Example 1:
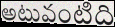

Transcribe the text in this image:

అటువంటిది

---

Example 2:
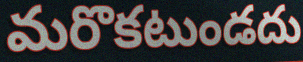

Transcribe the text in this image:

మరొకటుండదు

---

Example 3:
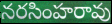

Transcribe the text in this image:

నరసింహరావు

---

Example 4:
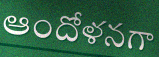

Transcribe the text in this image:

ఆందోళనగా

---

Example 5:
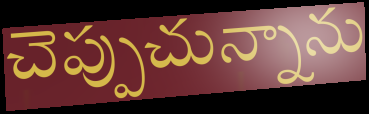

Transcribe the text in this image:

చెప్పుచున్నాను